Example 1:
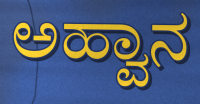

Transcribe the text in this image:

ಅಹ್ವಾನ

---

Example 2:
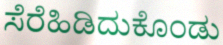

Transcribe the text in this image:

ಸೆರೆಹಿಡಿದುಕೊಂಡು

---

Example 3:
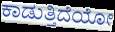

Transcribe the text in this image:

ಕಾಡುತ್ತಿದೆಯೋ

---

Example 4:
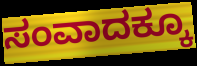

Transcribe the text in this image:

ಸಂವಾದಕ್ಕೂ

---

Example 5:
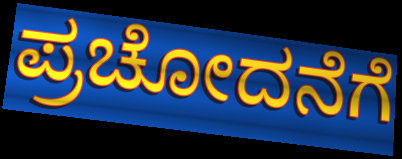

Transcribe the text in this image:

ಪ್ರಚೋದನೆಗೆ